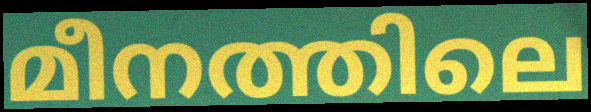
മീനത്തിലെ